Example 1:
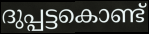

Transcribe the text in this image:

ദുപ്പട്ടകൊണ്ട്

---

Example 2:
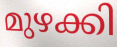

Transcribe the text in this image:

മുഴക്കി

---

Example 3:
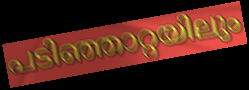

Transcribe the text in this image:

പടിഞ്ഞാറ്റയിലും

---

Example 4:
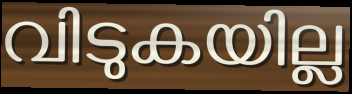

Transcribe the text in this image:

വിടുകയില്ല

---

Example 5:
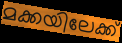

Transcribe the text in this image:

മക്കയിലേക്ക്